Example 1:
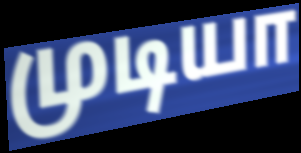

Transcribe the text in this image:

முடியா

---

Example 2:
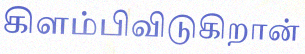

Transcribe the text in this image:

கிளம்பிவிடுகிறான்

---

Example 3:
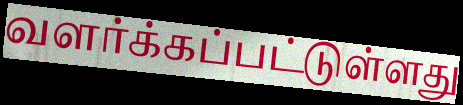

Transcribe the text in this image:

வளர்க்கப்பட்டுள்ளது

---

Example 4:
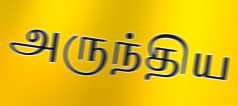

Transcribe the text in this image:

அருந்திய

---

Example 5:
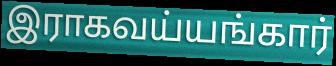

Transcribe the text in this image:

இராகவய்யங்கார்